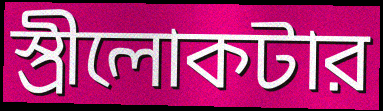
স্ত্রীলোকটার